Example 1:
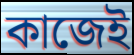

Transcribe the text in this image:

কাজেই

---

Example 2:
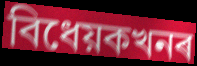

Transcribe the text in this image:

বিধেয়কখনৰ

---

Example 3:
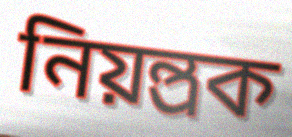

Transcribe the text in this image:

নিয়ন্ত্ৰক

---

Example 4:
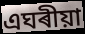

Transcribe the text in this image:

এঘৰীয়া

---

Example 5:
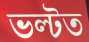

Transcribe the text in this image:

ভল্টত